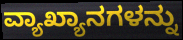
ವ್ಯಾಖ್ಯಾನಗಳನ್ನು